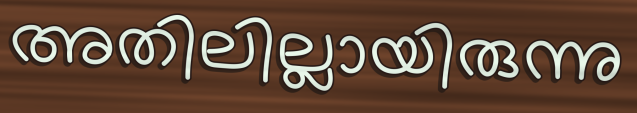
അതിലില്ലായിരുന്നു